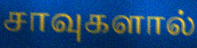
சாவுகளால்